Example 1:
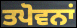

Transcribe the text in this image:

ਤਪੋਵਨਾਂ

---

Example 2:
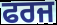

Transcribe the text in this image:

ਫਰਜ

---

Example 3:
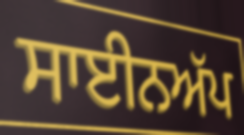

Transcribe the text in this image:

ਸਾਈਨਅੱਪ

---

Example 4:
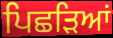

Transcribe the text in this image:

ਪਿਛੜਿਆਂ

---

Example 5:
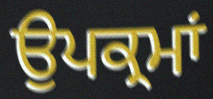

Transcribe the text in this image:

ਉਪਕ੍ਰਮਾਂ